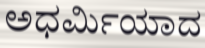
ಅಧರ್ಮಿಯಾದ